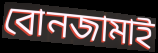
বোনজামাই